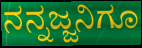
ನನ್ನಜ್ಜನಿಗೂ